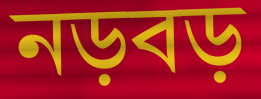
নড়বড়